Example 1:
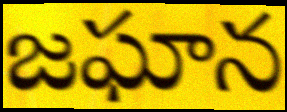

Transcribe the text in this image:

జఘాన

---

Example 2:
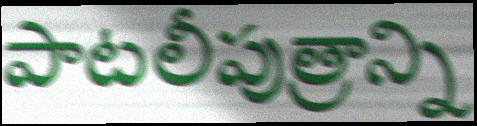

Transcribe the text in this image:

పాటలీపుత్రాన్ని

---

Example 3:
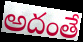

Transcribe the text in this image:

అదంతే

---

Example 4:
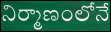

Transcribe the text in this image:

నిర్మాణంలోనే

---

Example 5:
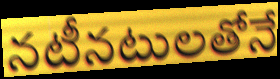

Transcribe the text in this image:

నటీనటులతోనే